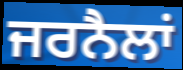
ਜਰਨੈਲਾਂ